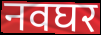
नवघर